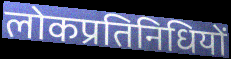
लोकप्रतिनिधियों